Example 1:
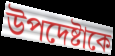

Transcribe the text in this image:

উপদেষ্টাকে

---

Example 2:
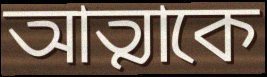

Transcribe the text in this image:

আত্মাকে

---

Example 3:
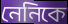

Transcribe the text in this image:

নেনিকে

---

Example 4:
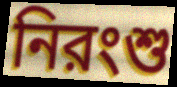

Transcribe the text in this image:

নিরংশু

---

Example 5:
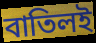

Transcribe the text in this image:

বাতিলই